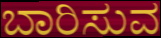
ಬಾರಿಸುವ